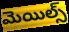
మెయిల్స్